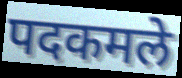
पदकमले